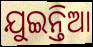
ଯୁଇନ୍ତିଆ